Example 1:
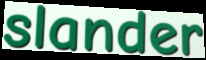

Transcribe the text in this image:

slander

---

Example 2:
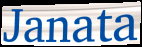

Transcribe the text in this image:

Janata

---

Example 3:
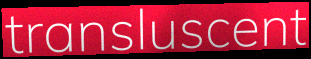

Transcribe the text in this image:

transluscent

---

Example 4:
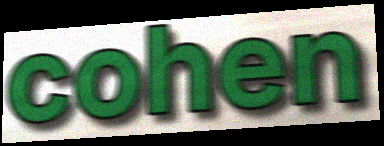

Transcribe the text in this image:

cohen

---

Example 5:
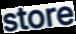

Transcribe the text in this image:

store